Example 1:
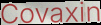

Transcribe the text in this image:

Covaxin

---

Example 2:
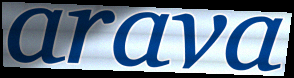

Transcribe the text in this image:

arava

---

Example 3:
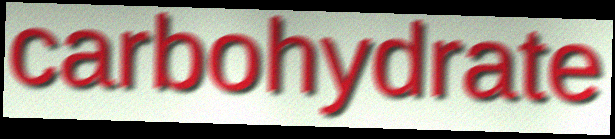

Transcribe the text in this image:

carbohydrate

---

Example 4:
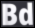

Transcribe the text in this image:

Bd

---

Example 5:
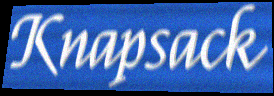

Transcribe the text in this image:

Knapsack